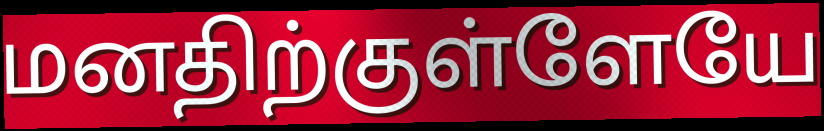
மனதிற்குள்ளேயே